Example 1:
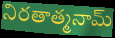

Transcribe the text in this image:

నిరతాత్మనామ్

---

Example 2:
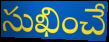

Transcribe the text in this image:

సుఖించే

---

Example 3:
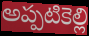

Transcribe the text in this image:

అప్పటికెల్లి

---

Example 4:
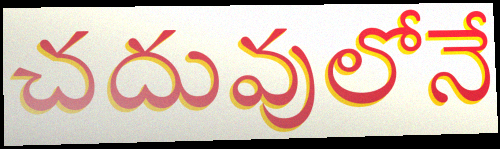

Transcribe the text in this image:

చదువులోనే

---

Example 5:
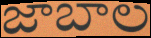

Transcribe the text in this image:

జాబాల